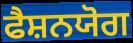
ਫੈਸ਼ਨਯੋਗ